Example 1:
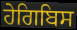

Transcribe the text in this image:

ਹੇਗਿਬਿਸ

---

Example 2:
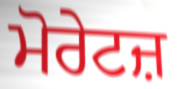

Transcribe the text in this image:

ਮੋਰੇਟਜ਼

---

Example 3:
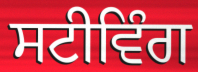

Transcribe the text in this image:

ਸਟੀਵਿੰਗ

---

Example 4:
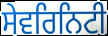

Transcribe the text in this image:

ਸੇਵਰਿਨਿਟੀ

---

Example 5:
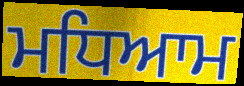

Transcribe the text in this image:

ਮਧਿਆਮ